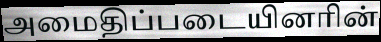
அமைதிப்படையினரின்